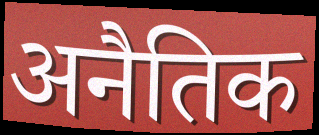
अनैतिक